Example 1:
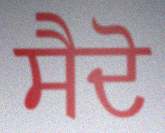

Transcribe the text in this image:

ਸੈਦੋ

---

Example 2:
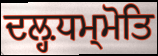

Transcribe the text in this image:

ਦਲ਼੍ਹਧਮ੍ਮੋਤਿ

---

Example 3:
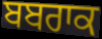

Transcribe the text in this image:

ਬਬਰਾਕ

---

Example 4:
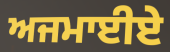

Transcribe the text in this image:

ਅਜਮਾਈਏ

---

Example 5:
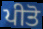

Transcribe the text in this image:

ਪੀਤੋ